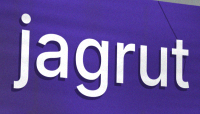
jagrut